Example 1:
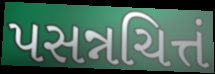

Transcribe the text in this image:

પસન્નચિત્તં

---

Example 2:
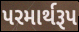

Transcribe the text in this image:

પરમાર્થરૂપ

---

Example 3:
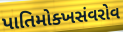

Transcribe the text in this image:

પાતિમોક્ખસંવરોવ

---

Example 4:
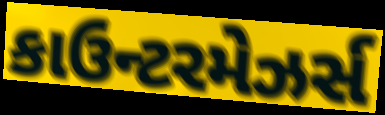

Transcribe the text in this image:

કાઉન્ટરમેઝર્સ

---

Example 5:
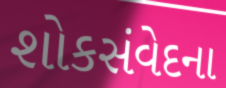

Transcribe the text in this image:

શોકસંવેદના